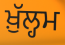
ਖ਼ੁੱਲ੍ਹਮ